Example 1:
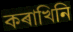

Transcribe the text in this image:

কৰাখিনি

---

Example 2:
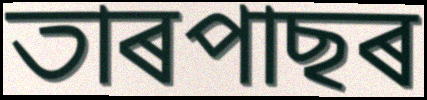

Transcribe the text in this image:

তাৰপাছৰ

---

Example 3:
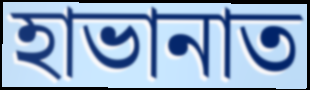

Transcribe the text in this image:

হাভানাত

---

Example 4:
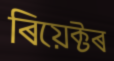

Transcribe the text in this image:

ৰিয়েক্টৰ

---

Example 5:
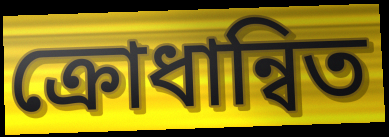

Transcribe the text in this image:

ক্ৰোধান্বিত